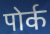
पोर्क